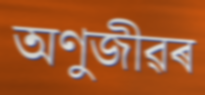
অণুজীৱৰ